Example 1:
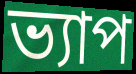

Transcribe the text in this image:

ভ্যাপ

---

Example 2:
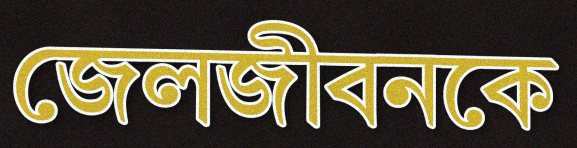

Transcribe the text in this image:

জেলজীবনকে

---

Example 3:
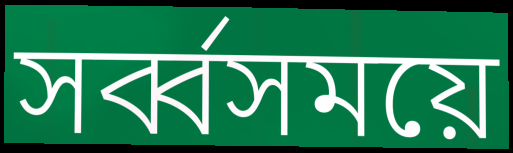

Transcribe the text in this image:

সর্ব্বসময়ে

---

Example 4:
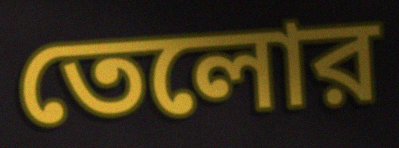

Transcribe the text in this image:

তেলোর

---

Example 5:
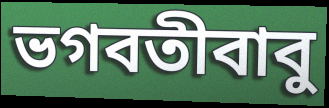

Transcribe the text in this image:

ভগবতীবাবু